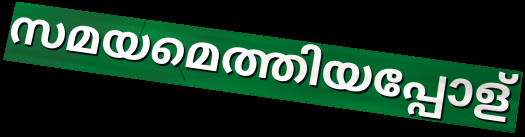
സമയമെത്തിയപ്പോള്